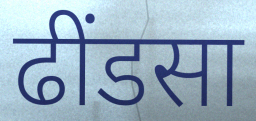
ढींडसा